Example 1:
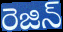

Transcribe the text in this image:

రెజిన్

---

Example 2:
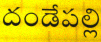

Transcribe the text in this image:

దండేపల్లి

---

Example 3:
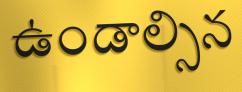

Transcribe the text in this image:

ఉండాల్సిన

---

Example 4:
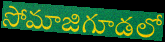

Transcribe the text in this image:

సోమాజిగూడలో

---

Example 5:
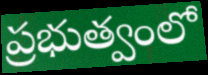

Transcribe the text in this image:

ప్రభుత్వంలో